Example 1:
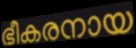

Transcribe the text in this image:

ഭീകരനായ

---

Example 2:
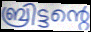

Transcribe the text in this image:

ബ്രിട്ടന്റെ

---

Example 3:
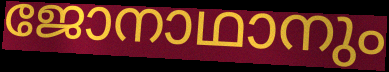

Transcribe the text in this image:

ജോനാഥാനും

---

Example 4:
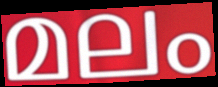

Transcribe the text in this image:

മലം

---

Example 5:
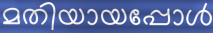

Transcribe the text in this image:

മതിയായപ്പോൾ